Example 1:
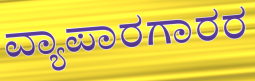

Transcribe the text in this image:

ವ್ಯಾಪಾರಗಾರರ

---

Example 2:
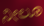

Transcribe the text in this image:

ನೀಲೂ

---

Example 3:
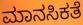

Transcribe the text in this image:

ಮಾನಸಿಕತೆ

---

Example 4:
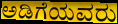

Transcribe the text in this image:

ಅಡಿಗೆಯವರು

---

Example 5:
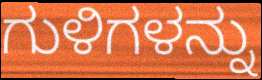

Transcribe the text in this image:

ಗುಳಿಗಳನ್ನು